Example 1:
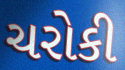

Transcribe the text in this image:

ચરોકી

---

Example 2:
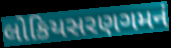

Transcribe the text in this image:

લોકિયસરણગમનં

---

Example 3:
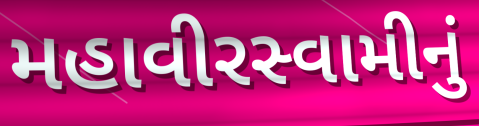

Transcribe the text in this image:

મહાવીરસ્વામીનું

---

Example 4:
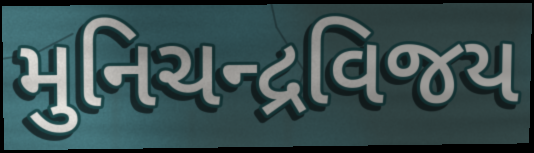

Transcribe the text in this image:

મુનિચન્દ્રવિજય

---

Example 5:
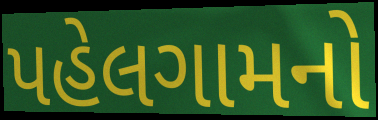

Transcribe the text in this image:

પહેલગામનો